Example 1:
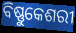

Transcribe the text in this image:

ବିଷ୍ଣୁକେଶରୀ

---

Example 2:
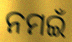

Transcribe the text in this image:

ନମଇଁ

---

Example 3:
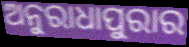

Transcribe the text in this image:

ଅନୁରାଧାପୁରାର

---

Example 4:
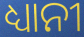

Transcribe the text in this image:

ଧ୍ୟାନୀ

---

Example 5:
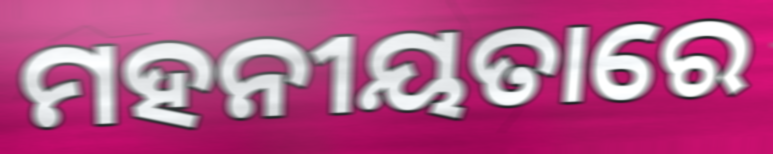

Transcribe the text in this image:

ମହନୀୟତାରେ